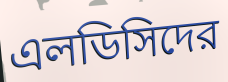
এলডিসিদের